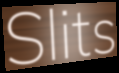
Slits